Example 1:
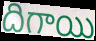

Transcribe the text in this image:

దిగాయి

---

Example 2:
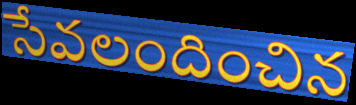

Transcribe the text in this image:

సేవలందించిన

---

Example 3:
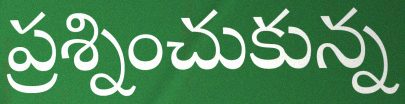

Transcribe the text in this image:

ప్రశ్నించుకున్న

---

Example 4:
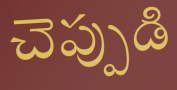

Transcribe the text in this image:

చెప్పుడి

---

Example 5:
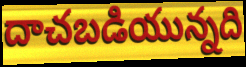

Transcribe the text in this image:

దాచబడియున్నది